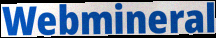
Webmineral